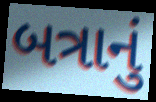
બત્રાનું